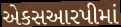
એકસઆરપીમાં